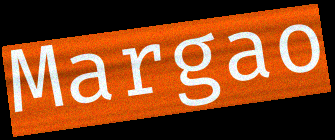
Margao